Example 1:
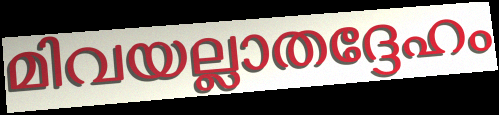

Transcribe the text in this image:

മിവയല്ലാതദ്ദേഹം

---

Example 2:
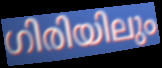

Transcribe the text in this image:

ഗിരിയിലും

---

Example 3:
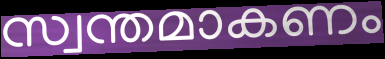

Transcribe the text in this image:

സ്വന്തമാകണം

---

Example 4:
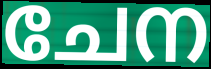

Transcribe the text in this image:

ചേന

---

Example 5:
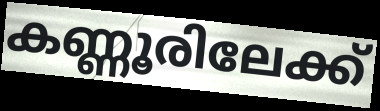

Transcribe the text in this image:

കണ്ണൂരിലേക്ക്